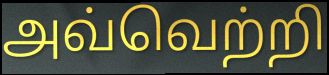
அவ்வெற்றி